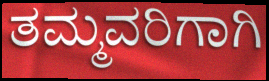
ತಮ್ಮವರಿಗಾಗಿ